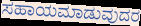
ಸಹಾಯಮಾಡುವುದರ